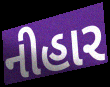
નીહાર